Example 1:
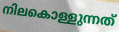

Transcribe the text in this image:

നിലകൊള്ളുന്നത്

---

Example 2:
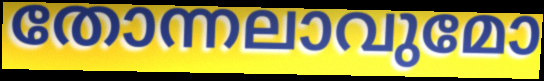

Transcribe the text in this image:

തോന്നലാവുമോ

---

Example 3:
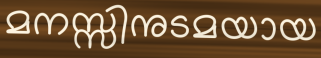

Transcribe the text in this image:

മനസ്സിനുടമയായ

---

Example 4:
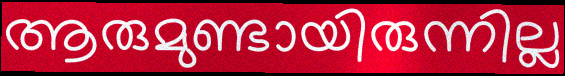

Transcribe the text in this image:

ആരുമുണ്ടായിരുന്നില്ല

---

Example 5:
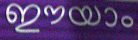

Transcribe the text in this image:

ഈയാം